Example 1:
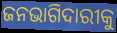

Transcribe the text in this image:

ଜନଭାଗିଦାରୀକୁ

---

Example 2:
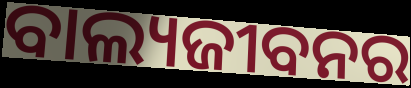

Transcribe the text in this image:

ବାଲ୍ୟଜୀବନର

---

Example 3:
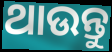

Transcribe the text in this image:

ଥାଉନ୍ତୁ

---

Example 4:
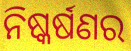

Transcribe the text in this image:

ନିଷ୍କର୍ଷଣର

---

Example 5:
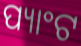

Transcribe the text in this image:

ପ୍ୟାଂଟ